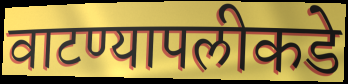
वाटण्यापलीकडे